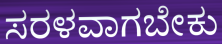
ಸರಳವಾಗಬೇಕು